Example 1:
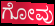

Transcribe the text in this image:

ಗೋವು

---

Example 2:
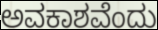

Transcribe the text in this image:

ಅವಕಾಶವೆಂದು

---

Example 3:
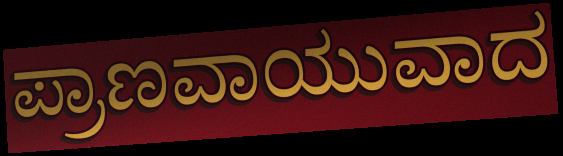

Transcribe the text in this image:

ಪ್ರಾಣವಾಯುವಾದ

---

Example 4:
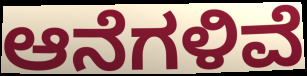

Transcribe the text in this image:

ಆನೆಗಳಿವೆ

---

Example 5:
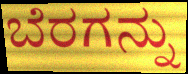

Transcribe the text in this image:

ಬೆರಗನ್ನು